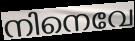
നിനെവേ